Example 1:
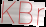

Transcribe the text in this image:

KBr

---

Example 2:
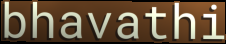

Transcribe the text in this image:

bhavathi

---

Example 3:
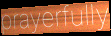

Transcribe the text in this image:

prayerfully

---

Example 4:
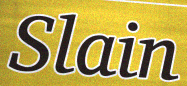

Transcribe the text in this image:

Slain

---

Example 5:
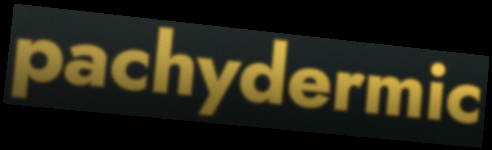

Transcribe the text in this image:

pachydermic